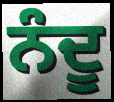
ਨੰਦੂ